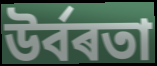
উৰ্বৰতা